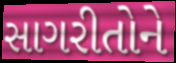
સાગરીતોને